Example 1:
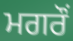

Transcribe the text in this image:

ਮਗਰੌਂ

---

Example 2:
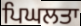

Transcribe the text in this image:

ਪਿਘਲਤਾ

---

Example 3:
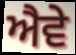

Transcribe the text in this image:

ਐਵੇ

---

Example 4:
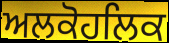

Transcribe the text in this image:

ਅਲਕੋਹਲਿਕ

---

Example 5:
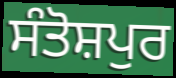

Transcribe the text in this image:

ਸੰਤੋਸ਼ਪੁਰ